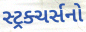
સ્ટ્રક્ચર્સનો